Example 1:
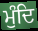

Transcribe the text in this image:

ਮੁੰਦਿ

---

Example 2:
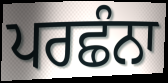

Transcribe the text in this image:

ਪਰਛੰਨਾ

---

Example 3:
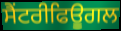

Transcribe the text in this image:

ਸੈਂਟਰੀਫਿਊਗਲ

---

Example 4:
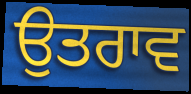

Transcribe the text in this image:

ਉਤਰਾਵ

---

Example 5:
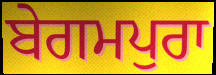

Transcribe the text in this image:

ਬੇਗਮਪੁਰਾ